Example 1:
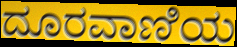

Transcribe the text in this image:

ದೂರವಾಣಿಯ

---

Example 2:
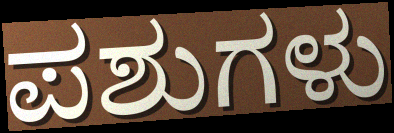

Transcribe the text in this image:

ಪಶುಗಳು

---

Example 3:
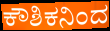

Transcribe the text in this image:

ಕೌಶಿಕನಿಂದ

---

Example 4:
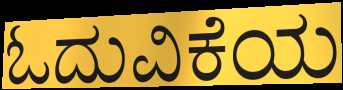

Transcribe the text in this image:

ಓದುವಿಕೆಯ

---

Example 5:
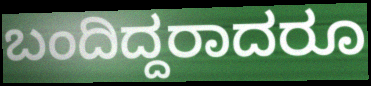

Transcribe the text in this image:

ಬಂದಿದ್ದರಾದರೂ